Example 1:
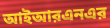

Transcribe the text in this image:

আইআরএনএর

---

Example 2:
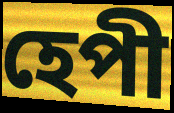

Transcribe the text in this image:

হেপী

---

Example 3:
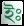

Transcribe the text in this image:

ইঃ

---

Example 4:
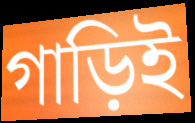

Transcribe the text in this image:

গাড়িই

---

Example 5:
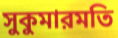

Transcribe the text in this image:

সুকুমারমতি